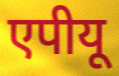
एपीयू